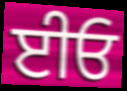
ਈਓ